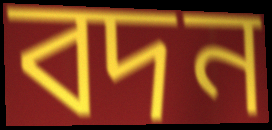
বদন